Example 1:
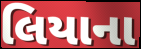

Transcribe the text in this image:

લિયાના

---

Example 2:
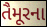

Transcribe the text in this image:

તૈમૂરના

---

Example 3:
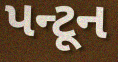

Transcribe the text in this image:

પન્ટૂન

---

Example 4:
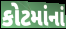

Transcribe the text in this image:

કોટમાંનાં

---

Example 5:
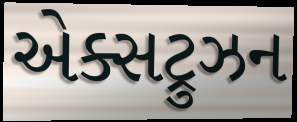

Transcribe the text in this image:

એક્સટ્રુઝન